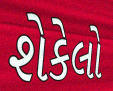
શેકેલો